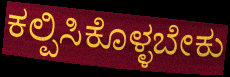
ಕಲ್ಪಿಸಿಕೊಳ್ಳಬೇಕು